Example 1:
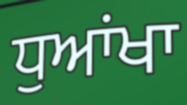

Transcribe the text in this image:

ਧੁਆਂਖਾ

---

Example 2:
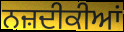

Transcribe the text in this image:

ਨਜ਼ਦੀਕੀਆਂ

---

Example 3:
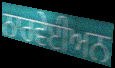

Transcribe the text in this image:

ਨਾਰਵੇਈਅਨ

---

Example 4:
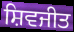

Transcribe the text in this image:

ਸ਼ਿਵਜੀਤ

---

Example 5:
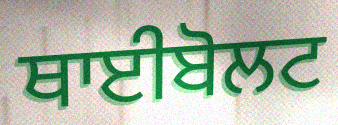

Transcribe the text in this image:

ਥਾਈਬੋਲਟ